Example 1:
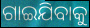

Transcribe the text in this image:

ଗାଇଯିବାକୁ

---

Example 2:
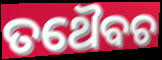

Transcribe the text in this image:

ତଥୈବଚ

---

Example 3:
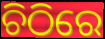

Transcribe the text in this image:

ଚିଠିରେ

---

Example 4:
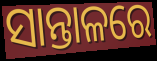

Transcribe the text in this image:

ସାନ୍ତାଳରେ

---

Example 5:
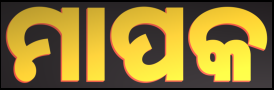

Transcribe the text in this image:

ମାପକ